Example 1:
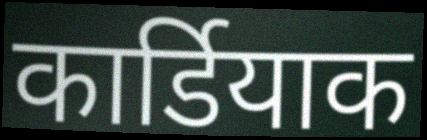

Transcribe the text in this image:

कार्डियाक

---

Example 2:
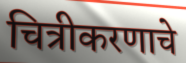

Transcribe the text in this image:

चित्रीकरणाचे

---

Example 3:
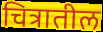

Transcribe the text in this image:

चित्रातील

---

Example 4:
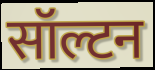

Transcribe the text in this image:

सॉल्टन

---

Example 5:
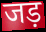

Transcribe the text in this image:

जड़